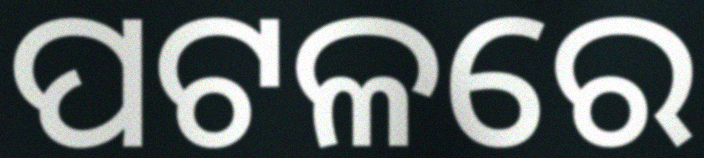
ପଟଳରେ